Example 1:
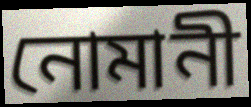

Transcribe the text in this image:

নোমানী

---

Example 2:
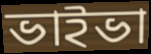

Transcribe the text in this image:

ভাইভা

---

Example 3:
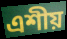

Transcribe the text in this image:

এশীয়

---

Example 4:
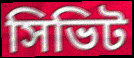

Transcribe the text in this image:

সিভিট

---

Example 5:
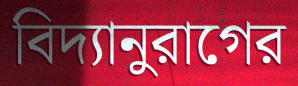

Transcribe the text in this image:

বিদ্যানুরাগের